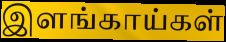
இளங்காய்கள்